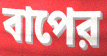
বাপের